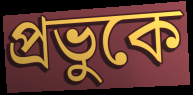
প্রভুকে